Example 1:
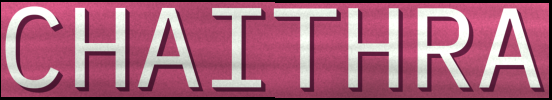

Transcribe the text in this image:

CHAITHRA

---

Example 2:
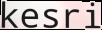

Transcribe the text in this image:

kesri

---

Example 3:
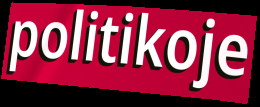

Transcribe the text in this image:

politikoje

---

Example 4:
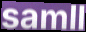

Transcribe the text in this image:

samll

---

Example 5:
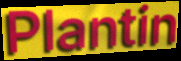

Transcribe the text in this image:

Plantin